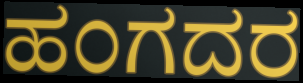
ಹಂಗದರ